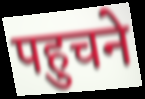
पहुचने